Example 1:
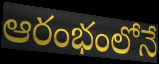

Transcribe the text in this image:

ఆరంభంలోనే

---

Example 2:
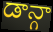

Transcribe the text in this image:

డాన్గా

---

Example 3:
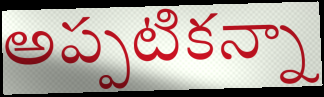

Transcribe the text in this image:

అప్పటికన్నా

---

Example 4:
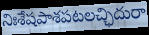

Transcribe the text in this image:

నిఃశేషపాశపటలచ్ఛిదురా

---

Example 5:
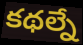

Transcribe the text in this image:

కథల్నే